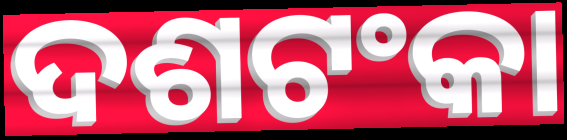
ଦଶଟଂକା